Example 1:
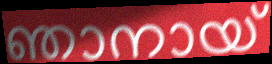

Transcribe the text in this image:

ഞാനായ്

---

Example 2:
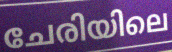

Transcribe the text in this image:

ചേരിയിലെ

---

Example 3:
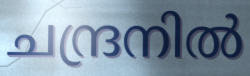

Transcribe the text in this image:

ചന്ദ്രനിൽ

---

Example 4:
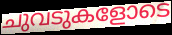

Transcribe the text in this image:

ചുവടുകളോടെ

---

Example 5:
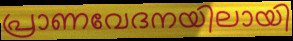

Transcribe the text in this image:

പ്രാണവേദനയിലായി